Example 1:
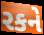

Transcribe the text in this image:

રકને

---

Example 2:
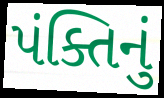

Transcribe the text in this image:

પંક્તિનું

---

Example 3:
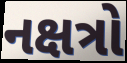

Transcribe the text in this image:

નક્ષત્રો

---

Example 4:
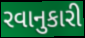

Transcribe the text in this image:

રવાનુકારી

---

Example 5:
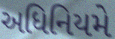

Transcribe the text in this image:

અધિનિયમે